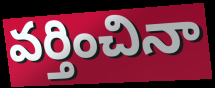
వర్తించినా